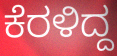
ಕೆರಳಿದ್ದ